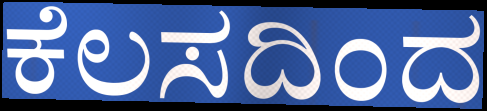
ಕೆಲಸದಿಂದ